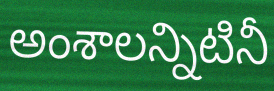
అంశాలన్నిటినీ